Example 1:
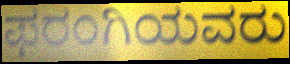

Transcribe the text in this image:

ಫರಂಗಿಯವರು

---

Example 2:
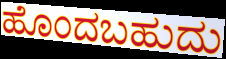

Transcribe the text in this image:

ಹೊಂದಬಹುದು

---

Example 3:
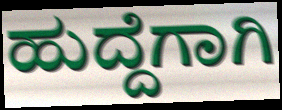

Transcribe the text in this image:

ಹುದ್ದೆಗಾಗಿ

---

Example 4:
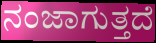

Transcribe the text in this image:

ನಂಜಾಗುತ್ತದೆ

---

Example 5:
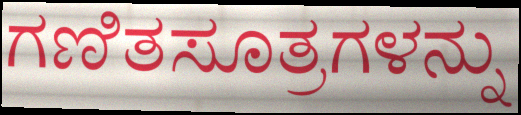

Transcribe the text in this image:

ಗಣಿತಸೂತ್ರಗಳನ್ನು